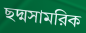
ছদ্মসামরিক